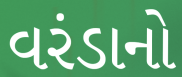
વરંડાનો